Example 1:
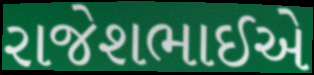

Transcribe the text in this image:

રાજેશભાઈએ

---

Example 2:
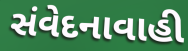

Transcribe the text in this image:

સંવેદનાવાહી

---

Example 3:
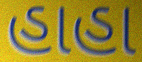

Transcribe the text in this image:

હાહા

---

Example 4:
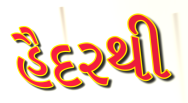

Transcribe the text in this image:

હૈદરથી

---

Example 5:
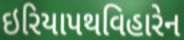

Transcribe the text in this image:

ઇરિયાપથવિહારેન